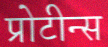
प्रोटीन्स